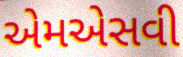
એમએસવી